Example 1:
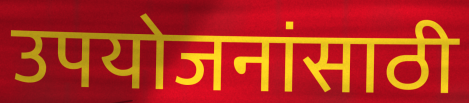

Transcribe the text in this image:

उपयोजनांसाठी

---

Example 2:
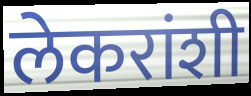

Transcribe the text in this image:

लेकरांशी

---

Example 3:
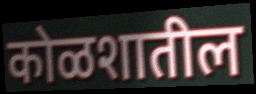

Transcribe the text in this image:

कोळशातील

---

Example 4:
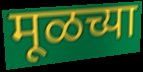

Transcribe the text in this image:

मूळच्या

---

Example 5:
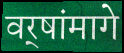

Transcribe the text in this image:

वर्षांमागे